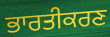
ਭਾਰਤੀਕਰਣ